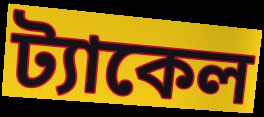
ট্যাকেল